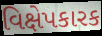
વિક્ષેપકારક